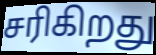
சரிகிறது